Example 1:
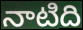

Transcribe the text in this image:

నాటిది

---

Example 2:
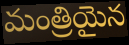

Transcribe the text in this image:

మంత్రియైన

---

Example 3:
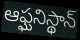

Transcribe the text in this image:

ఆఫ్ఘనిస్థాన్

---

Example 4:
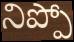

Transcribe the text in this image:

నిప్పో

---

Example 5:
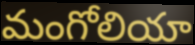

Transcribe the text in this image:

మంగోలియా